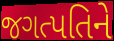
જગત્પતિને